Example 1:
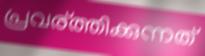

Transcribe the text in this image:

പ്രവര്ത്തിക്കുന്നത്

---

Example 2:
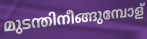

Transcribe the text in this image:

മുടന്തിനീങ്ങുമ്പോള്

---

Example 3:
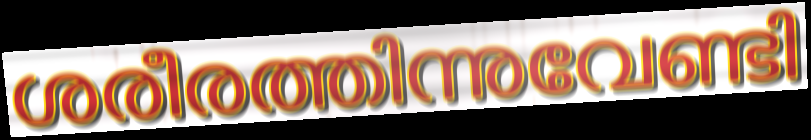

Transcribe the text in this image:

ശരീരത്തിന്നുവേണ്ടി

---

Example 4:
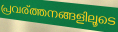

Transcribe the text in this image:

പ്രവര്ത്തനങ്ങളിലൂടെ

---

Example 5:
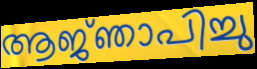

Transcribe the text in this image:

ആജ്‌ഞാപിച്ചു